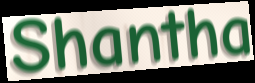
Shantha